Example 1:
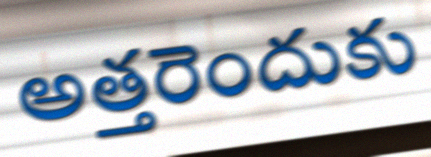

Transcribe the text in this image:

అత్తరెందుకు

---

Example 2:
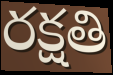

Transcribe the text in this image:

రక్షతి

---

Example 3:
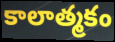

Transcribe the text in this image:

కాలాత్మకం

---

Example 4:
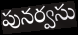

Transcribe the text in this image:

పునర్వసు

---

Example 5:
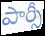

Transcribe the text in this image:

పార్సీ